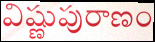
విష్ణుపురాణం